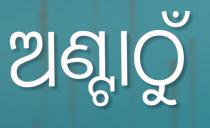
ଅଣ୍ଟାଠୁଁ